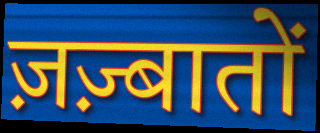
ज़ज़्बातों